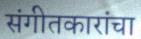
संगीतकारांचा